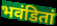
भवंडितां